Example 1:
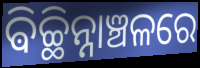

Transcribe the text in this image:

ଵିଚ୍ଛିନ୍ନାଞ୍ଚଳରେ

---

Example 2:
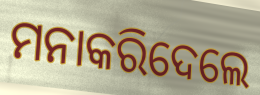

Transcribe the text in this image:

ମନାକରିଦେଲେ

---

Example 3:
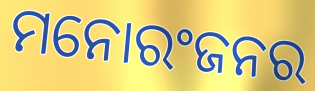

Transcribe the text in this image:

ମନୋରଂଜନର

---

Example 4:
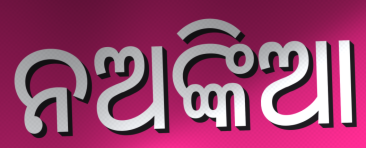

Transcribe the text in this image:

ନଅଙ୍କିଆ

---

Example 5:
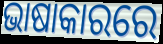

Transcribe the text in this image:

ଭାଷାକାରରେ